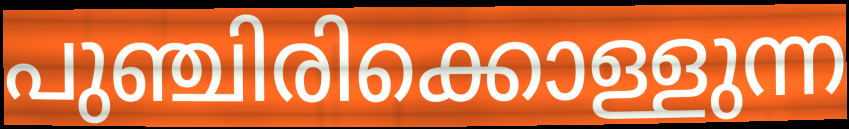
പുഞ്ചിരിക്കൊള്ളുന്ന